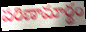
పరిణామార్థం